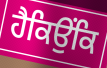
ਹੈਕਿਉਂਕਿ